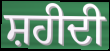
ਸ਼ਹੀਦੀ